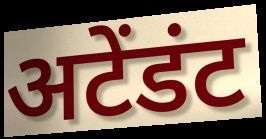
अटेंडंट